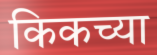
किकच्या